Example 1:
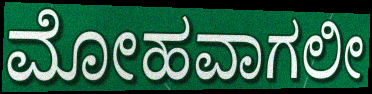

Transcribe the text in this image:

ಮೋಹವಾಗಲೀ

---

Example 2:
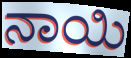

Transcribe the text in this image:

ನಾಯಿ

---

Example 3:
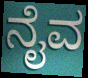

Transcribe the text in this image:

ನೈವ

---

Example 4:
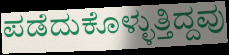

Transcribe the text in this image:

ಪಡೆದುಕೊಳ್ಳುತ್ತಿದ್ದವು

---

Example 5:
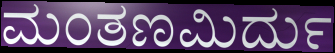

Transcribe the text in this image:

ಮಂತಣಮಿರ್ದು